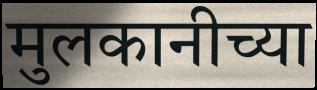
मुलकानीच्या